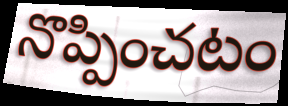
నొప్పించటం